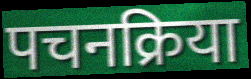
पचनक्रिया